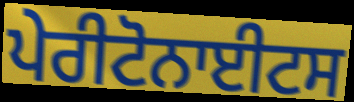
ਪੇਰੀਟੋਨਾਈਟਸ